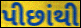
પીછાંથી